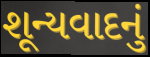
શૂન્યવાદનું